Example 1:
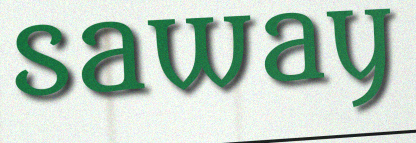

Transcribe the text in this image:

saway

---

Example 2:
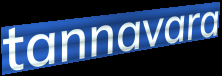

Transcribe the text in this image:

tannavara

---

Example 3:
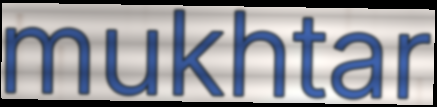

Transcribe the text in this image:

mukhtar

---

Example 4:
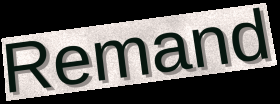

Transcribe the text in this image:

Remand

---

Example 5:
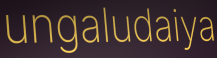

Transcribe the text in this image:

ungaludaiya